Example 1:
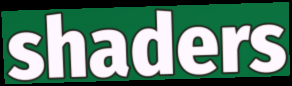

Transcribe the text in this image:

shaders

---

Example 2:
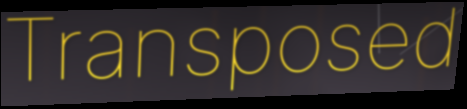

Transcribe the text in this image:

Transposed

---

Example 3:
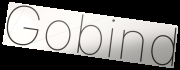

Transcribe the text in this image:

Gobind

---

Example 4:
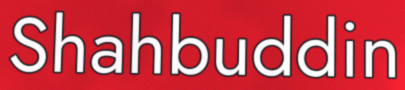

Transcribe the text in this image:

Shahbuddin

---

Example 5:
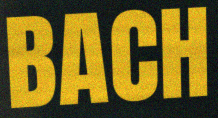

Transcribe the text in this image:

BACH